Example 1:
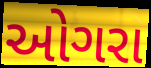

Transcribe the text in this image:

ઓગરા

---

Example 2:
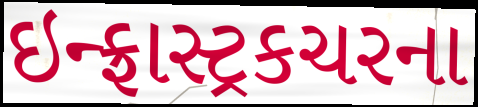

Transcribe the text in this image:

ઇન્ફ્રાસ્ટ્રકચરના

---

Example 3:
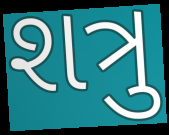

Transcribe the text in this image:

શત્રુ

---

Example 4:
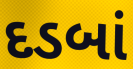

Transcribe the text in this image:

દડબાં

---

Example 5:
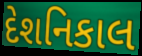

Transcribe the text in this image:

દેશનિકાલ